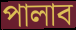
পালাব